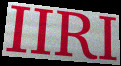
IIRI